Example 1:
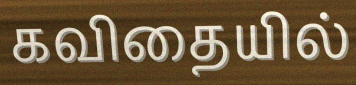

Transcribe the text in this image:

கவிதையில்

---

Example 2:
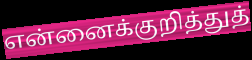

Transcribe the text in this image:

என்னைக்குறித்துத்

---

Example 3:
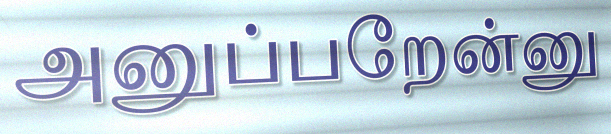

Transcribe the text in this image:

அனுப்பறேன்னு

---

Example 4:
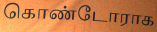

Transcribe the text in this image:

கொண்டோராக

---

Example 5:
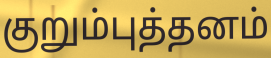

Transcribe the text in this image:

குறும்புத்தனம்